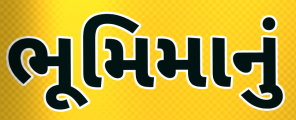
ભૂમિમાનું